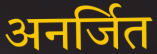
अनर्जित